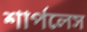
শার্পলেস